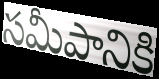
సమీపానికి